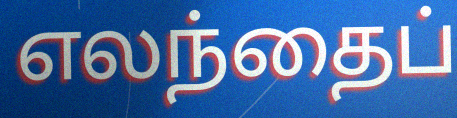
எலந்தைப்